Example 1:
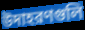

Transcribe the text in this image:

উদাহরণগুলি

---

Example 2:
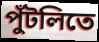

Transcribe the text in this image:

পুঁটলিতে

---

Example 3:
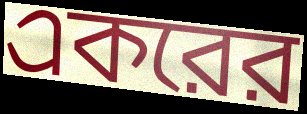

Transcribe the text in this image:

একরের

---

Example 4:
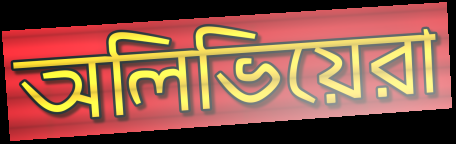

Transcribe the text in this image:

অলিভিয়েরা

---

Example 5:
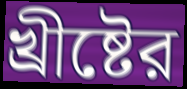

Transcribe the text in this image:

খ্রীষ্টের